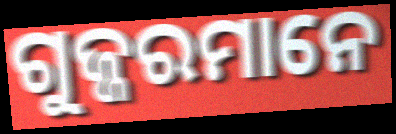
ଗୁଜ୍ଜରମାନେ